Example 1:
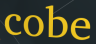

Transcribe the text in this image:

cobe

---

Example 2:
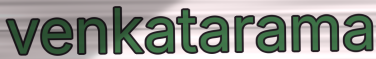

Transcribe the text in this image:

venkatarama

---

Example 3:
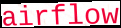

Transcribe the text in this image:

airflow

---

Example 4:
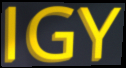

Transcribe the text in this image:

IGY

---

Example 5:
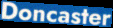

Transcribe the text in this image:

Doncaster